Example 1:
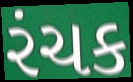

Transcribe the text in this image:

રંચક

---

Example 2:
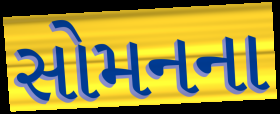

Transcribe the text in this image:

સોમનના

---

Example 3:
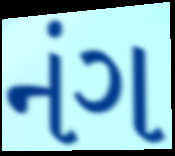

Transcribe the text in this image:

નંગ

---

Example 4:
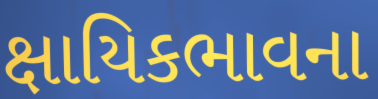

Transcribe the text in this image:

ક્ષાયિકભાવના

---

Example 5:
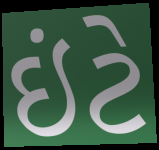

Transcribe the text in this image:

ઇંટે